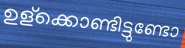
ഉള്ക്കൊണ്ടിട്ടുണ്ടോ